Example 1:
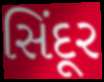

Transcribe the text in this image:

સિંદૂર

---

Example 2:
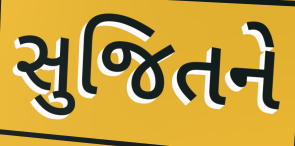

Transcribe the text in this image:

સુજિતને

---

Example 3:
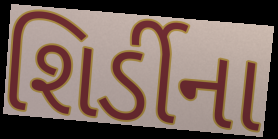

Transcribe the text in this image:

શિર્ડીના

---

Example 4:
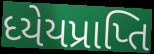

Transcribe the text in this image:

ધ્યેયપ્રાપ્તિ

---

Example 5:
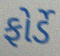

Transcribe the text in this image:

ફોર્ડે